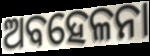
ଅବହେଳନା